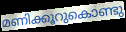
മണിക്കൂറുകൊണ്ടു